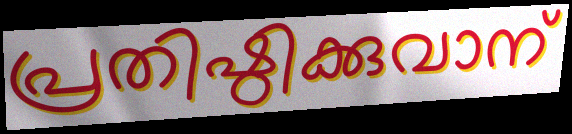
പ്രതിഷ്ഠിക്കുവാന്